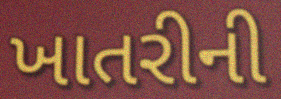
ખાતરીની